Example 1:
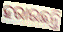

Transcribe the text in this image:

ହରାଉଛନ୍ତି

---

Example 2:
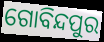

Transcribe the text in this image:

ଗୋବିନ୍ଦପୁର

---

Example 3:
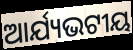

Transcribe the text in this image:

ଆର୍ଯ୍ୟଭଟୀୟ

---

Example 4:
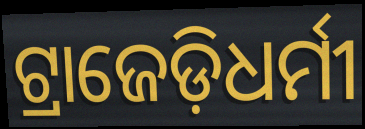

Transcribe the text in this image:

ଟ୍ରାଜେଡ଼ିଧର୍ମୀ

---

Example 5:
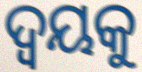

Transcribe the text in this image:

ଦ୍ୱୟକୁ